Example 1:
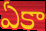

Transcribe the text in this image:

ఏకా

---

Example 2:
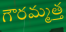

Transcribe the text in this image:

గౌరమ్మత్త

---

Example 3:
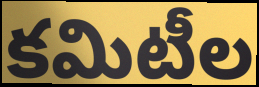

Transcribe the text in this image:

కమిటీల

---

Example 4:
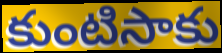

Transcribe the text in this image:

కుంటిసాకు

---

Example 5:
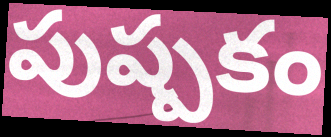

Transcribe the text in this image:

పుష్పకం